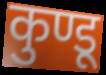
कुण्डू